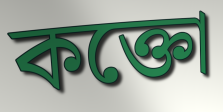
কক্তো